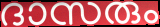
ദാസരും